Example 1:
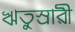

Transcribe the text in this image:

ঋতুস্ৰাৱী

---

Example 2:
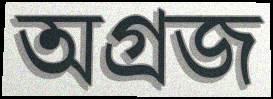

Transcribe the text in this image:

অগ্ৰজ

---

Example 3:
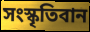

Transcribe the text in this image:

সংস্কৃতিবান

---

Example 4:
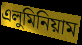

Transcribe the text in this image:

এলুমিনিয়াম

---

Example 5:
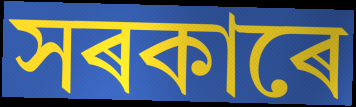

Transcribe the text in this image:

সৰকাৰে